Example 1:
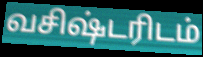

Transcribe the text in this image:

வசிஷ்டரிடம்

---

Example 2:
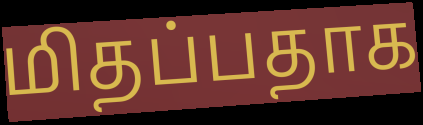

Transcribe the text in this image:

மிதப்பதாக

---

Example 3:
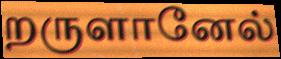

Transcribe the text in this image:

றருளானேல்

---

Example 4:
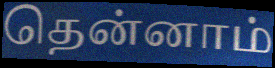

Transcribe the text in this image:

தென்னாம்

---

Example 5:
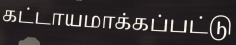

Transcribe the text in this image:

கட்டாயமாக்கப்பட்டு